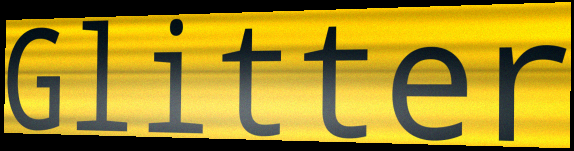
Glitter